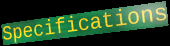
Specifications